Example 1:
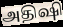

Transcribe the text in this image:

அதிஷி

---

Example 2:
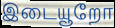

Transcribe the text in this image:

இடையூறோ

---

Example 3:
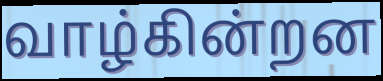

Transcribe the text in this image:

வாழ்கின்றன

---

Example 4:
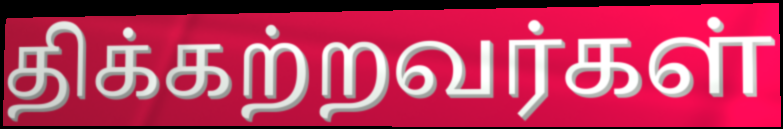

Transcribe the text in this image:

திக்கற்றவர்கள்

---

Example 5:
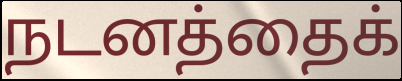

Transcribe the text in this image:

நடனத்தைக்